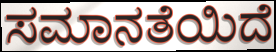
ಸಮಾನತೆಯಿದೆ